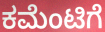
ಕಮೆಂಟಿಗೆ